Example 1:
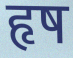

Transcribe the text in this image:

हृष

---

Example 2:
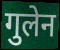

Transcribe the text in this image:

गुलेन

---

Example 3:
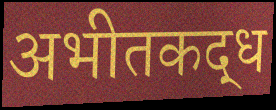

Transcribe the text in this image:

अभीतकद्ध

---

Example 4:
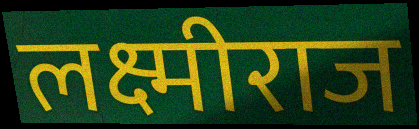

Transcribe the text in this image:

लक्ष्मीराज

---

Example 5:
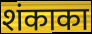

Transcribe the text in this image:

शंकाका